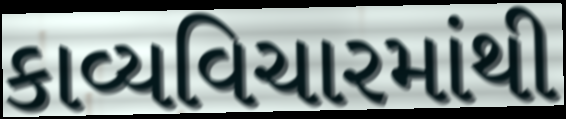
કાવ્યવિચારમાંથી